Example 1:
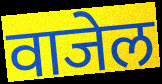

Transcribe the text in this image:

वाजेल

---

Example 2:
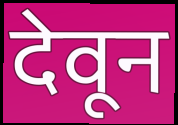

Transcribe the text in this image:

देवून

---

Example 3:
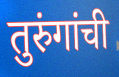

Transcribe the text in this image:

तुरुंगांची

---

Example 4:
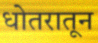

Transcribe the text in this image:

धोतरातून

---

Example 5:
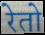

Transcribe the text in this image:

रेतो